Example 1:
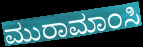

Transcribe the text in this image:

ಮುರಾಮಾಂಸಿ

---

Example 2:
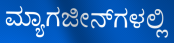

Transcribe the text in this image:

ಮ್ಯಾಗಜೀನ್‌ಗಳಲ್ಲಿ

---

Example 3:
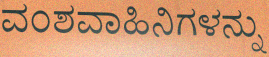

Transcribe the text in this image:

ವಂಶವಾಹಿನಿಗಳನ್ನು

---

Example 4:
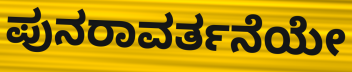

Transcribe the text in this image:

ಪುನರಾವರ್ತನೆಯೇ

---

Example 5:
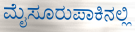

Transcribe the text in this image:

ಮೈಸೂರುಪಾಕಿನಲ್ಲಿ